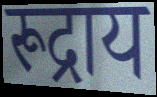
रूद्राय